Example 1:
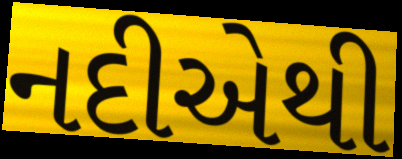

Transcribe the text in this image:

નદીએથી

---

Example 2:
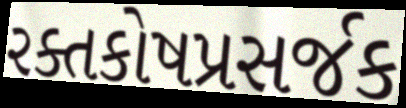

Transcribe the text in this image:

રક્તકોષપ્રસર્જક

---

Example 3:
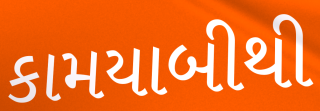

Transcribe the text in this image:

કામયાબીથી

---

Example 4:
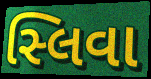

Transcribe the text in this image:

સ્લિવા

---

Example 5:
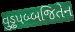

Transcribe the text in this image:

વુડ્ઢપબ્બજિતેન